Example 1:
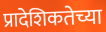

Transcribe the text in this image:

प्रादेशिकतेच्या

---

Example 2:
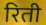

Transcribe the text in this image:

रिती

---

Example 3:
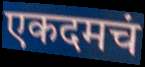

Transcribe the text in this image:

एकदमचं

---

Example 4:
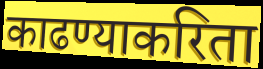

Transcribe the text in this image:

काढण्याकरिता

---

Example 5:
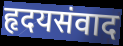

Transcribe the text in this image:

हृदयसंवाद